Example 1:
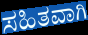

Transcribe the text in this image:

ಸಹಿತವಾಗಿ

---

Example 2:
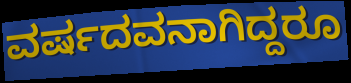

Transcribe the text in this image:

ವರ್ಷದವನಾಗಿದ್ದರೂ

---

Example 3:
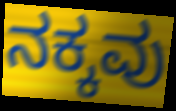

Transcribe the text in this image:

ನಕ್ಕವು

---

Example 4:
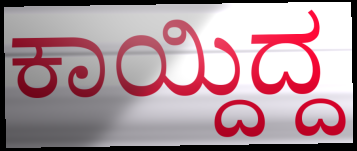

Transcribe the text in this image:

ಕಾಯ್ದಿದ್ದ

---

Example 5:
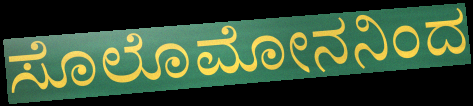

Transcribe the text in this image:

ಸೊಲೊಮೋನನಿಂದ